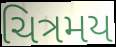
ચિત્રમય